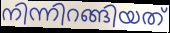
നിന്നിറങ്ങിയത്